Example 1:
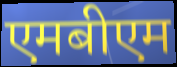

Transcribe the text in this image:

एमबीएम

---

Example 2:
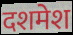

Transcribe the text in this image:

दशमेश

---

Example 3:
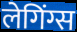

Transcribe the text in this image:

लेगिंग्स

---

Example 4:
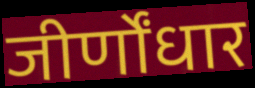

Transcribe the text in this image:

जीर्णोंधार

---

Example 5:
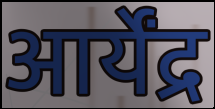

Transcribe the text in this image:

आर्येंद्र